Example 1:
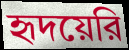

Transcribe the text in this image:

হৃদয়েরি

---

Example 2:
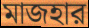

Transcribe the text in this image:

মাজহার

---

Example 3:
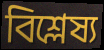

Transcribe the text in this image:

বিশ্লেষ্য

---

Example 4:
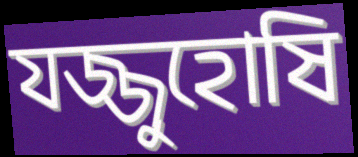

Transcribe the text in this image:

যজ্জুহোষি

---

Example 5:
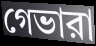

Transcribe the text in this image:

গেভারা